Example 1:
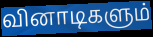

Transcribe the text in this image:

வினாடிகளும்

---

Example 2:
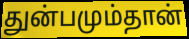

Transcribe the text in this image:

துன்பமும்தான்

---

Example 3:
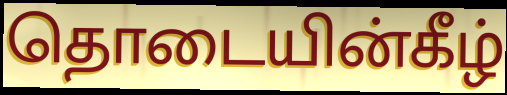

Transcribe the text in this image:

தொடையின்கீழ்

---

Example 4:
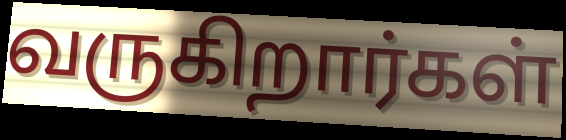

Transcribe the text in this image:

வருகிறார்கள்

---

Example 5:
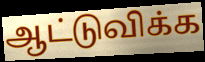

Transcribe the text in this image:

ஆட்டுவிக்க